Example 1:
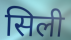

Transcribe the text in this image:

सिली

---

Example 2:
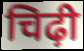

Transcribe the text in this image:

चिढ़ी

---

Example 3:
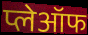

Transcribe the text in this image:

प्लेऑफ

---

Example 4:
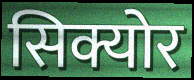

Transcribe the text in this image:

सिक्योर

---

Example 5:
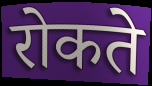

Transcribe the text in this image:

रोकते